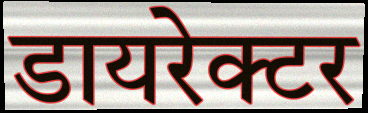
डायरेक्टर